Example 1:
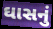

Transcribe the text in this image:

ઘાસનું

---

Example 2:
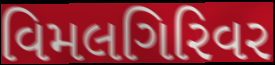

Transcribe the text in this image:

વિમલગિરિવર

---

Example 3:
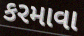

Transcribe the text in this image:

કરમાવા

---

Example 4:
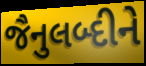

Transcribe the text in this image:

જૈનુલબ્દીને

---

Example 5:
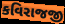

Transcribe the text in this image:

કવિરાજજી